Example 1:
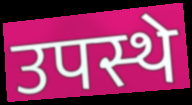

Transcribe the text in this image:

उपस्थे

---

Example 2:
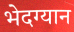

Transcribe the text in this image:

भेदग्यान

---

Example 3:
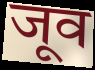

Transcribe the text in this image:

जूव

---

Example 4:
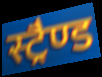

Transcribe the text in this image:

स्ट्रैण्ड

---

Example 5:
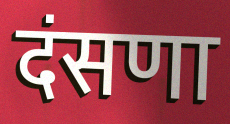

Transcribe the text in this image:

दंसणा